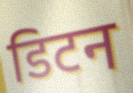
डिटन